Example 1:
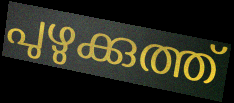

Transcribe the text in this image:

പുഴുക്കുത്ത്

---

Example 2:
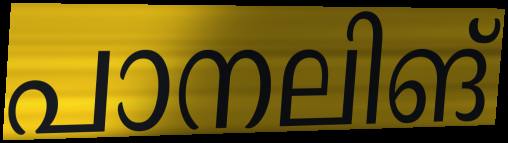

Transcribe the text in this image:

പാനലിങ്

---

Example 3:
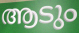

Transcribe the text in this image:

ആടും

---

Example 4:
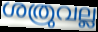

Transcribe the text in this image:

ശത്രുവല്ല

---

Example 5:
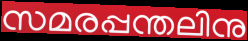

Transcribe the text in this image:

സമരപ്പന്തലിനു